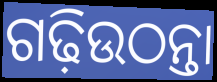
ଗଢ଼ିଉଠନ୍ତା